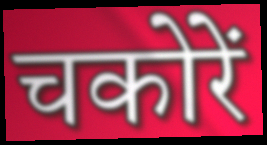
चकोरें